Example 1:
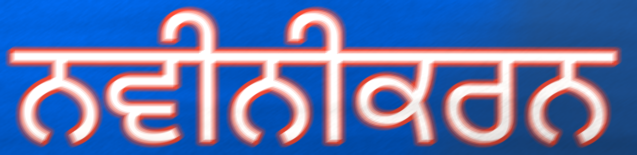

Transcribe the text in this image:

ਨਵੀਨੀਕਰਨ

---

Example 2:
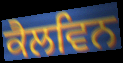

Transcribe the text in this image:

ਕੈਲਵਿਨ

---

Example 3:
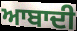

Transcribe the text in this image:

ਆਬਾਦੀ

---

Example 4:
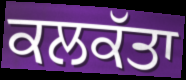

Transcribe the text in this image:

ਕਲਕੱਤਾ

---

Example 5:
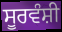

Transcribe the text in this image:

ਸੂਰਵੰਸ਼ੀ